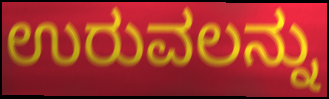
ಉರುವಲನ್ನು